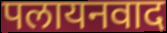
पलायनवाद